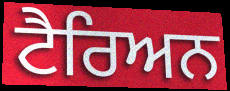
ਟੈਰਿਅਨ